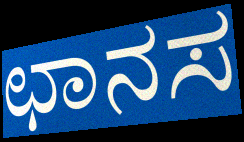
ಛಾನಸ